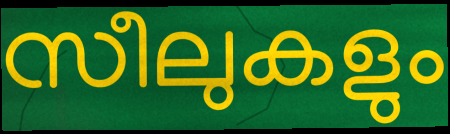
സീലുകളും